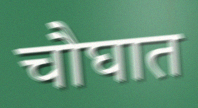
चौघात